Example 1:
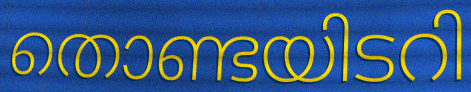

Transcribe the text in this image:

തൊണ്ടയിടറി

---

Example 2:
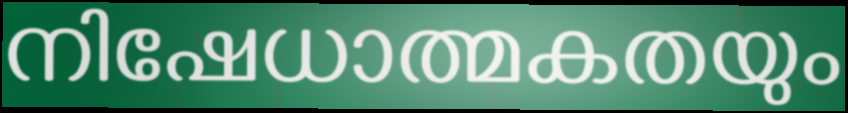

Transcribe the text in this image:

നിഷേധാത്മകതയും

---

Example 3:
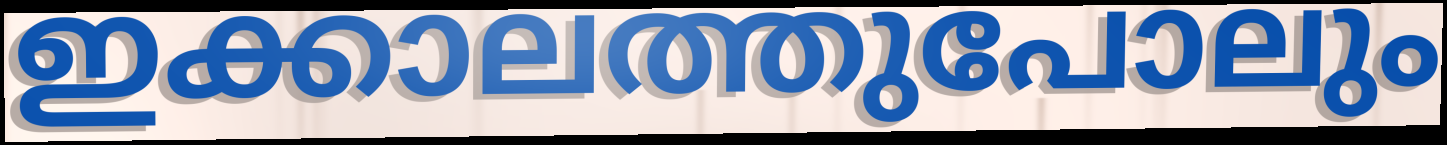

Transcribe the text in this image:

ഇക്കാലത്തുപോലും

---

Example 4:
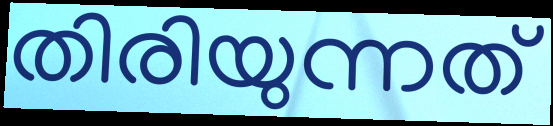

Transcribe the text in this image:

തിരിയുന്നത്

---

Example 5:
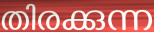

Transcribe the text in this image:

തിരക്കുന്ന